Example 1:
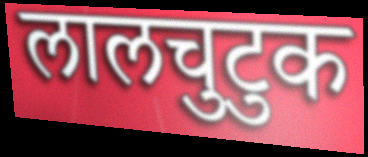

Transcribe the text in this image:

लालचुटुक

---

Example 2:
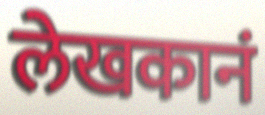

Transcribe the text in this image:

लेखकानं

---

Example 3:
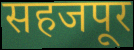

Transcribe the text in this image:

सहजपूर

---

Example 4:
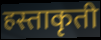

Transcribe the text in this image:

हस्ताकृती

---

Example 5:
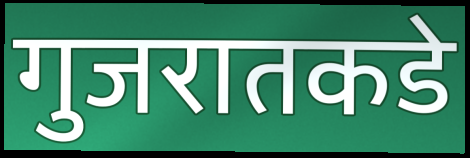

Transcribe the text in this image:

गुजरातकडे